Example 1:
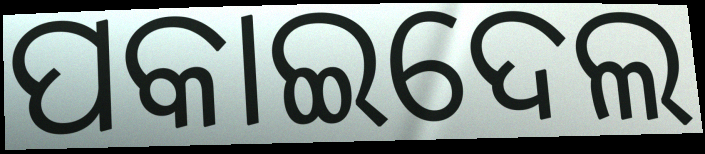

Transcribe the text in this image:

ପକାଇଦେଲ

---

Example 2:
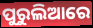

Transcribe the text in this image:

ପୁରୁଲିଆରେ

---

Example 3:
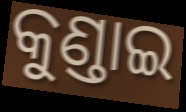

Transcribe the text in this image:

କୁଣ୍ଡାଇ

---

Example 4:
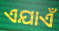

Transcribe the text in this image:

ଏଯାଏଁ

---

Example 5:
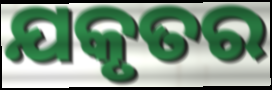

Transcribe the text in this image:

ଯକୃତର